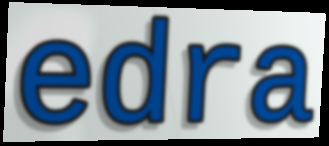
edra